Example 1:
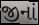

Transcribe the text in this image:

જીનાં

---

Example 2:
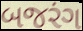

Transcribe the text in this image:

બજરંગ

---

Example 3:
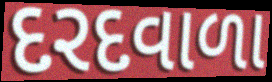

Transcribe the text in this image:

દરદવાળા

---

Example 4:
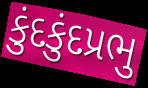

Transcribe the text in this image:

કુંદકુંદપ્રભુ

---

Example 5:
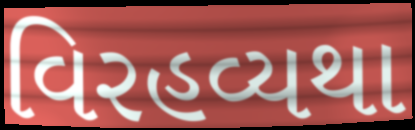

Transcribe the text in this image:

વિરહવ્યથા